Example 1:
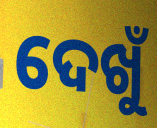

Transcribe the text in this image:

ଦେଖୁଁ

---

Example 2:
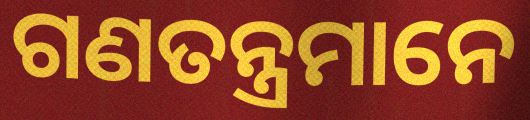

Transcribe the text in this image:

ଗଣତନ୍ତ୍ରମାନେ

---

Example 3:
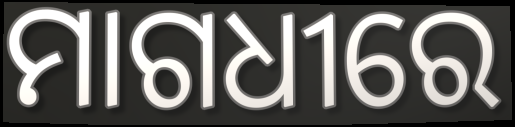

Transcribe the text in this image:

ମାଗଧୀରେ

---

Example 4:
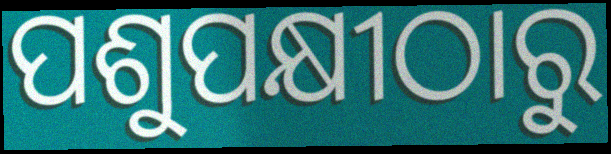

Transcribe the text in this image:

ପଶୁପକ୍ଷୀଠାରୁ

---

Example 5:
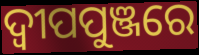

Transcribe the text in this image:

ଦ୍ୱୀପପୁଞ୍ଜରେ